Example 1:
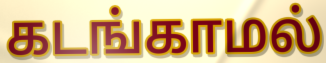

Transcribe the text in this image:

கடங்காமல்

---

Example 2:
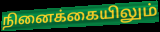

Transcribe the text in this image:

நினைக்கையிலும்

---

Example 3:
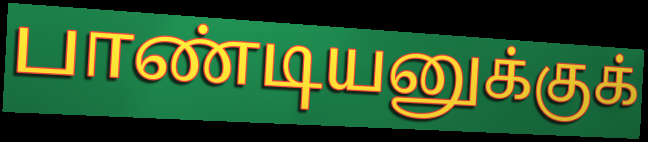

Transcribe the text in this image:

பாண்டியனுக்குக்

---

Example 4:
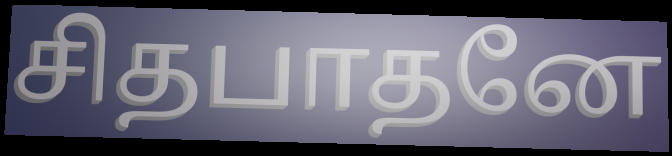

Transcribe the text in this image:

சிதபாதனே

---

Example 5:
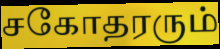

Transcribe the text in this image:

சகோதரரும்